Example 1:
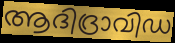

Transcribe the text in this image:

ആദിദ്രാവിഡ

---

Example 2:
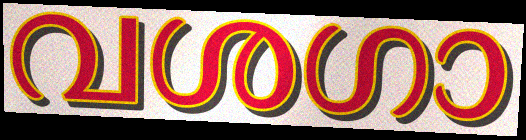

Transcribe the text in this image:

വശഗാ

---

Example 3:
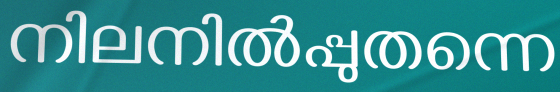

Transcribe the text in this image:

നിലനിൽപ്പുതന്നെ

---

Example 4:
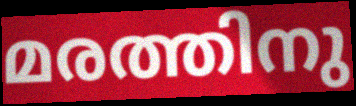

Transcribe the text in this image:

മരത്തിനു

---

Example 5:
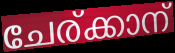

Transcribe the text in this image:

ചേര്ക്കാന്